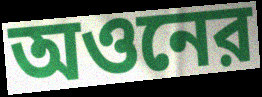
অওনের